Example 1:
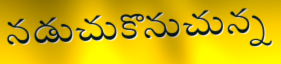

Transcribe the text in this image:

నడుచుకొనుచున్న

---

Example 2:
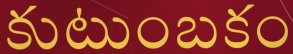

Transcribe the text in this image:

కుటుంబకం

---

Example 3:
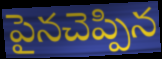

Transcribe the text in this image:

పైనచెప్పిన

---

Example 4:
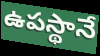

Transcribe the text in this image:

ఉపస్థానే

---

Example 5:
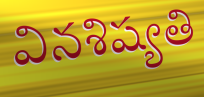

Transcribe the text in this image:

వినశిష్యతి